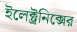
ইলেক্ট্রনিক্সের